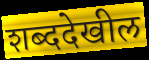
शब्ददेखील